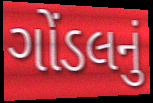
ગોંડલનું